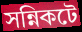
সন্নিকটে